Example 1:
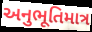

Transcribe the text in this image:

અનુભૂતિમાત્ર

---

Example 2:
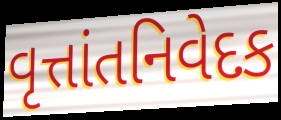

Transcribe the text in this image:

વૃત્તાંતનિવેદક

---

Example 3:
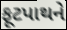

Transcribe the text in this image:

ફૂટપાથને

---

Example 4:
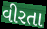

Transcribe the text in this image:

વીરતા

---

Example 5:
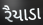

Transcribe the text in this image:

રૈયાડા